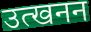
उत्खनन